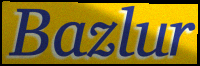
Bazlur